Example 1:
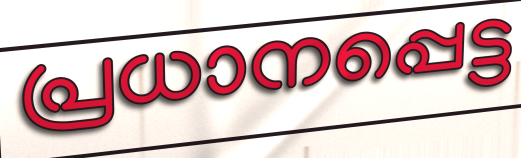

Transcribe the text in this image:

പ്രധാനപ്പെട്ട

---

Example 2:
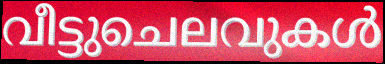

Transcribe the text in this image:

വീട്ടുചെലവുകൾ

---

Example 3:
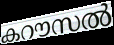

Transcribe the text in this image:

കറൗസൽ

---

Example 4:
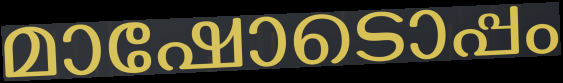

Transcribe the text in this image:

മാഷോടൊപ്പം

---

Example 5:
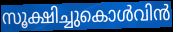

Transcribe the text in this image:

സൂക്ഷിച്ചുകൊൾവിൻ